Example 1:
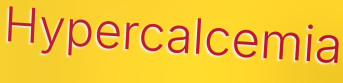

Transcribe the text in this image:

Hypercalcemia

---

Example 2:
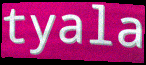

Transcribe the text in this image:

tyala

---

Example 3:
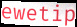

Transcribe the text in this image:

ewetip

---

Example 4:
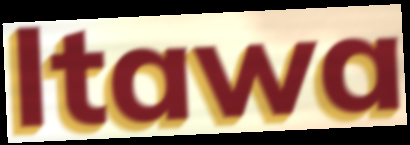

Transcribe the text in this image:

Itawa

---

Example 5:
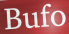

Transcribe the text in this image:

Bufo